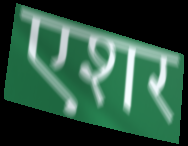
एशर